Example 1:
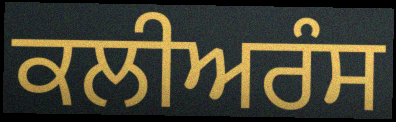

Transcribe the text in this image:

ਕਲੀਅਰੰਸ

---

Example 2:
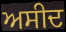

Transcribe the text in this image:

ਅਸੀਦ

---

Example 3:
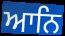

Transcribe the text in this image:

ਆਨਿ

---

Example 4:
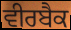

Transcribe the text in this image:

ਵੀਰਬੈਕ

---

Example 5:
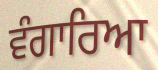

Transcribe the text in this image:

ਵੰਗਾਰਿਆ